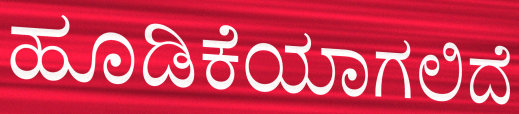
ಹೂಡಿಕೆಯಾಗಲಿದೆ